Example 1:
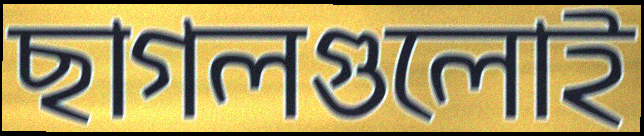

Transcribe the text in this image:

ছাগলগুলোই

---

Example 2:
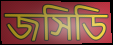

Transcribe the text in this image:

জসিডি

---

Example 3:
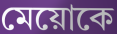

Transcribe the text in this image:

মেয়োকে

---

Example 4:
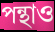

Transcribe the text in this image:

পন্থাও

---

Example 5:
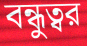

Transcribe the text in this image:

বন্ধুত্বর